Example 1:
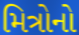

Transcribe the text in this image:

મિત્રોનો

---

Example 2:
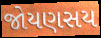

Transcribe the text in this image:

જોયણસય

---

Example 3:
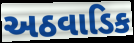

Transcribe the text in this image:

અઠવાડિક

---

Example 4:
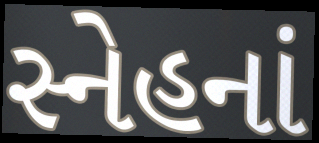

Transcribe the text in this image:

સ્નેહનાં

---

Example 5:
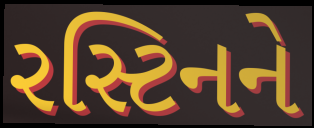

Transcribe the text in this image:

રસ્ટિનને